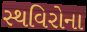
સ્થવિરોના